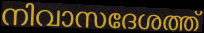
നിവാസദേശത്ത്